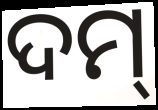
ଦମ୍